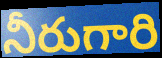
నీరుగారి